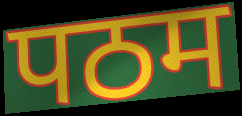
पठम